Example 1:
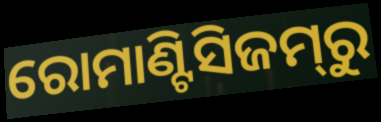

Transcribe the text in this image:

ରୋମାଣ୍ଟିସିଜମ୍‌ରୁ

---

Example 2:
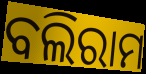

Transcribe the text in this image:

ବଲିରାମ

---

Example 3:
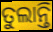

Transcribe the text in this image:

ତୁଲାନ୍ତି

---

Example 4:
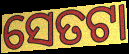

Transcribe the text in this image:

ସେତଟା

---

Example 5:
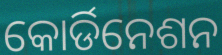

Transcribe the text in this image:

କୋର୍ଡିନେଶନ